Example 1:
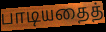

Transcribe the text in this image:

பாடியதைத்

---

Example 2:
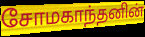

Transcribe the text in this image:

சோமகாந்தனின்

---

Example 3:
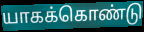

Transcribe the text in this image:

யாகக்கொண்டு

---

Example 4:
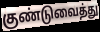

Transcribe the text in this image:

குண்டுவைத்து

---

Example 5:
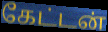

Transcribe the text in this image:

கேட்டன்